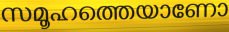
സമൂഹത്തെയാണോ